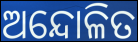
ଅନ୍ଦୋଳିତ